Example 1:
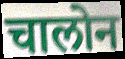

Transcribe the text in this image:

चालोन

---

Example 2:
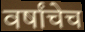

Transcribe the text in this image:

वर्षांचेच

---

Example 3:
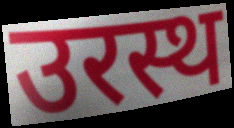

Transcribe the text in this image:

उरस्थ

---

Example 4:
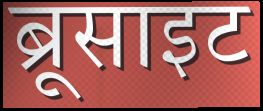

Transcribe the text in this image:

ब्रूसाइट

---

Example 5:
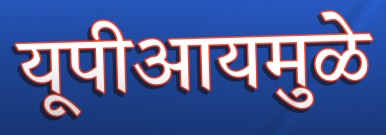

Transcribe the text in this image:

यूपीआयमुळे